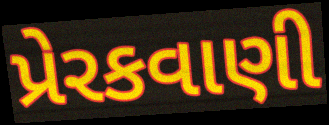
પ્રેરકવાણી